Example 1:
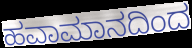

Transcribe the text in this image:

ಹವಾಮಾನದಿಂದ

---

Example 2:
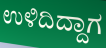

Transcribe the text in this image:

ಉಳಿದಿದ್ದಾಗ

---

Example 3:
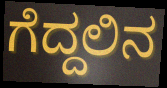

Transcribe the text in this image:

ಗೆದ್ದಲಿನ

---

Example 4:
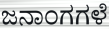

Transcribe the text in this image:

ಜನಾಂಗಗಳೆ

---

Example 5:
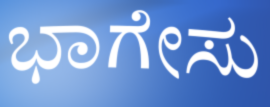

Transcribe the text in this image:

ಭಾಗೇಸು